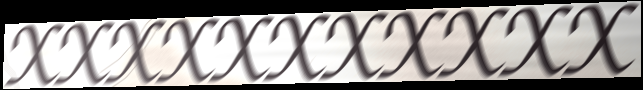
XXXXXXXXXXX